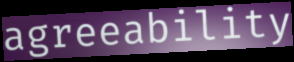
agreeability